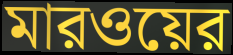
মারওয়ের